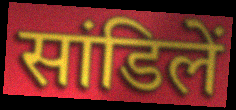
सांडिलें